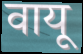
वायू